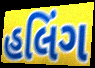
હલિંગ